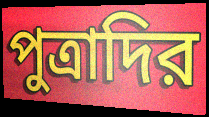
পুত্রাদির